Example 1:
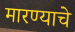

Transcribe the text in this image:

मारण्याचे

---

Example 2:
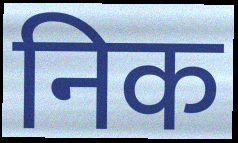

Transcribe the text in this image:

निक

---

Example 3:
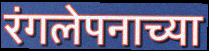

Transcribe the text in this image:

रंगलेपनाच्या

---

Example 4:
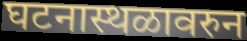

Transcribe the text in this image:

घटनास्थळावरुन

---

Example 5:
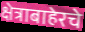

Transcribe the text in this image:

क्षेत्राबाहेरचे